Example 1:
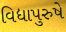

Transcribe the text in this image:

વિદ્યાપુરુષે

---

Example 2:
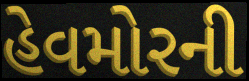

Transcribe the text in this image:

હેવમોરની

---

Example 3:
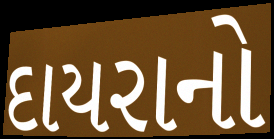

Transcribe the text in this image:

દાયરાનો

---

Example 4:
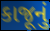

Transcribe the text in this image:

કાજૂનું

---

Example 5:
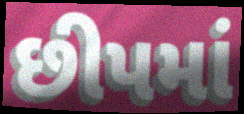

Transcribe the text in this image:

છીપમાં